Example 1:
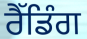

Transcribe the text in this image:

ਰੈੱਡਿੰਗ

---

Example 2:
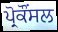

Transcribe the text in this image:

ਪ੍ਰੋਕੌਂਸਲ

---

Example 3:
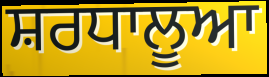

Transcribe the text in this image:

ਸ਼ਰਧਾਲੂਆ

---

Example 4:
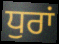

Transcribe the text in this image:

ਧੁਰਾਂ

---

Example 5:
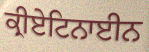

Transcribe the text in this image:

ਕ੍ਰੀਏਟਿਨਾਈਨ